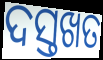
ଦସ୍ତଖତ